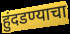
हुंदडण्याचा